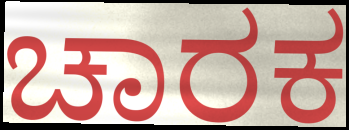
ಚಾರಕ